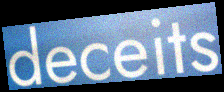
deceits